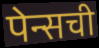
पेन्सची